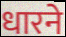
धारने